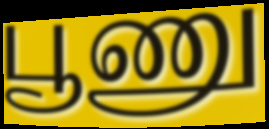
பூணு